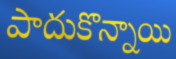
పాదుకొన్నాయి